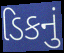
ડિકનું